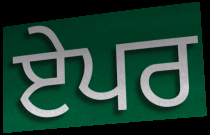
ਏਪਰ